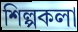
শিল্পকলা